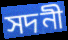
সদনী